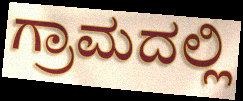
ಗ್ರಾಮದಲ್ಲಿ